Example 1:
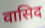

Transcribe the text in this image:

वासिद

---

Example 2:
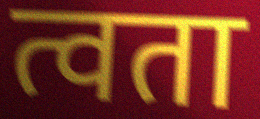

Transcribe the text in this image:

त्वता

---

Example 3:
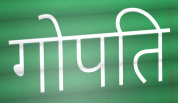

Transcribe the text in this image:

गोपति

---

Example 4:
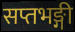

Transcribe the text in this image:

सप्तभङ्गी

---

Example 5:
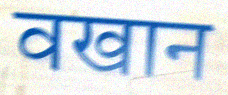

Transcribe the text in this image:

वखान